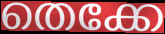
തെക്കേ